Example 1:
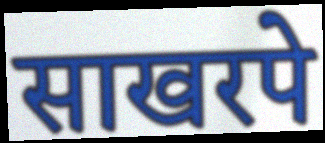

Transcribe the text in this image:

साखरपे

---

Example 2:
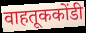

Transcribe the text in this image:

वाहतूककोंडी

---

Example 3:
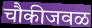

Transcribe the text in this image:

चौकीजवळ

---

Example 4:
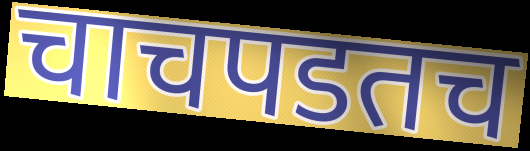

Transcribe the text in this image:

चाचपडतच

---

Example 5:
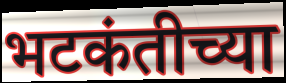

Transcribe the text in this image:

भटकंतीच्या